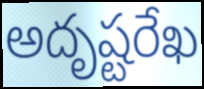
అదృష్టరేఖ